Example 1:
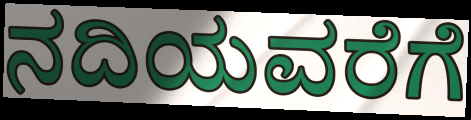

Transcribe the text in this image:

ನದಿಯವರೆಗೆ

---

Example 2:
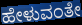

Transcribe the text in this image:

ಹೇಳುವಂತೇ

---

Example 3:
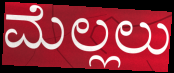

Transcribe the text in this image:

ಮೆಲ್ಲಲು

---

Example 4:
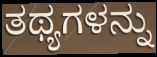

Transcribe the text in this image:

ತಥ್ಯಗಳನ್ನು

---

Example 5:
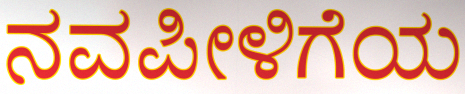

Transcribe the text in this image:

ನವಪೀಳಿಗೆಯ